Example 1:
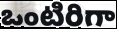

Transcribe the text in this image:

ఒంటిరిగా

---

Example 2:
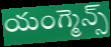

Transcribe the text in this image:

యంగ్మెన్స్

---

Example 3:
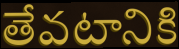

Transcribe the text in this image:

తేవటానికి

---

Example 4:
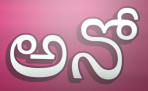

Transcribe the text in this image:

అనో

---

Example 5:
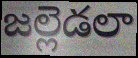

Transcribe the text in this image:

జల్లెడలా